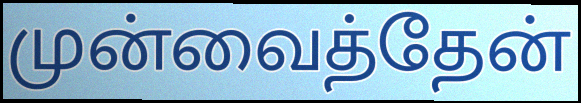
முன்வைத்தேன்